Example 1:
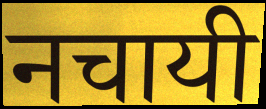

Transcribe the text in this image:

नचायी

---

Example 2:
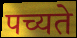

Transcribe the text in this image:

पच्यते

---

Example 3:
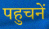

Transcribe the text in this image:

पहुचनें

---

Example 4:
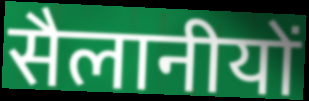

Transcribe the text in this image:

सैलानीयों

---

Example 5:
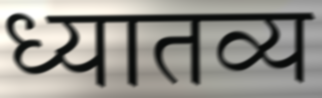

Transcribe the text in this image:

ध्यातव्य